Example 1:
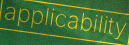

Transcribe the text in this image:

applicability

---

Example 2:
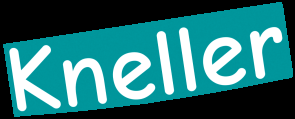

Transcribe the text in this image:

Kneller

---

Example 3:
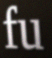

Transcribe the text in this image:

fu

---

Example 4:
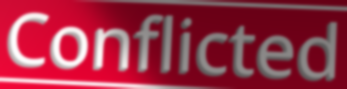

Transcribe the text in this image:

Conflicted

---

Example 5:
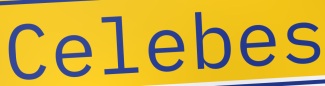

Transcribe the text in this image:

Celebes